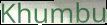
Khumbu